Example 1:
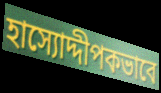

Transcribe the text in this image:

হাস্যোদ্দীপকভাবে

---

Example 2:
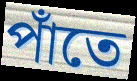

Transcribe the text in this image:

পাঁতে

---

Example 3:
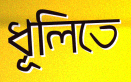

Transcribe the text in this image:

ধূলিতে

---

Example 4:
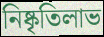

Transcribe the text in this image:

নিষ্কৃতিলাভ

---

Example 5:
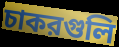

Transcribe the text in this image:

চাকরগুলি